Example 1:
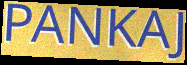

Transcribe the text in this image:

PANKAJ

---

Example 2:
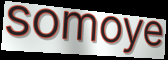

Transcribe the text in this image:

somoye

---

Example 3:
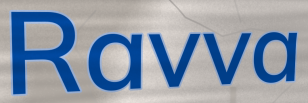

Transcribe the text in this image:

Ravva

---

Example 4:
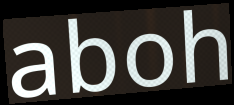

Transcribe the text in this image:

aboh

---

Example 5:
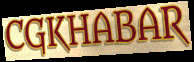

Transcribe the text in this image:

CGKHABAR